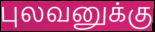
புலவனுக்கு